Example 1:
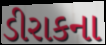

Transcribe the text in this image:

ડીરાકના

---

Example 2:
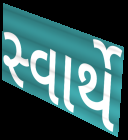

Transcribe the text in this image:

સ્વાર્થે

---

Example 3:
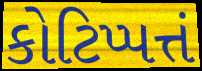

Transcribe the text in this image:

કોટિપ્પત્તં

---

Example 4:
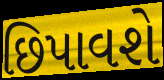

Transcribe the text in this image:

છિપાવશે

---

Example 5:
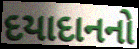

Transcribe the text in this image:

દયાદાનનો